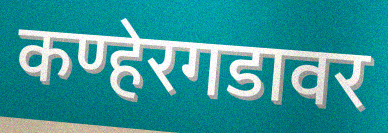
कण्हेरगडावर